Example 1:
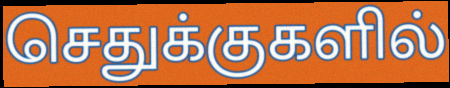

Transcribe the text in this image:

செதுக்குகளில்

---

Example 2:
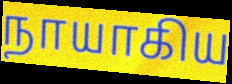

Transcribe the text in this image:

நாயாகிய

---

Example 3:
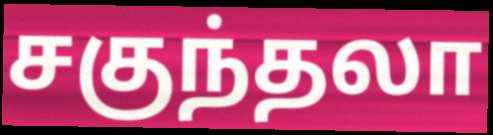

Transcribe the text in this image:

சகுந்தலா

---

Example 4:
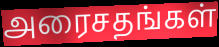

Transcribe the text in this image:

அரைசதங்கள்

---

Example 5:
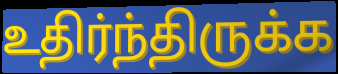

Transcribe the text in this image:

உதிர்ந்திருக்க